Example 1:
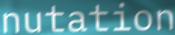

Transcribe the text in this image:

nutation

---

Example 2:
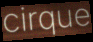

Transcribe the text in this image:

cirque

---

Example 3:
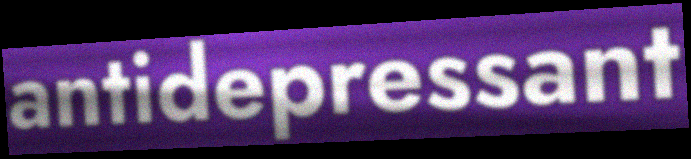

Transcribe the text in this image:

antidepressant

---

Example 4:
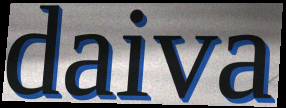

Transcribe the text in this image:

daiva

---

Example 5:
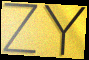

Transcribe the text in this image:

ZY